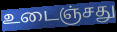
உடைஞ்சது